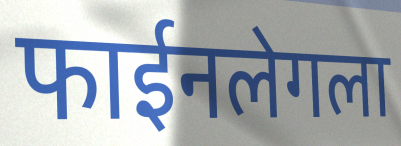
फाईनलेगला